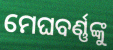
ମେଘବର୍ଣ୍ଣଙ୍କୁ